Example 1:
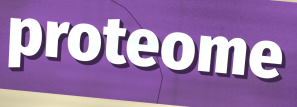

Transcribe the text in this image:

proteome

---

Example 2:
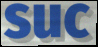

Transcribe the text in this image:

suc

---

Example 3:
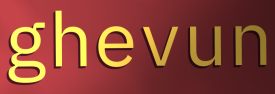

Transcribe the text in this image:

ghevun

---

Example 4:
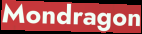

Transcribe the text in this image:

Mondragon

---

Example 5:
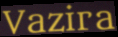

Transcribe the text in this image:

Vazira